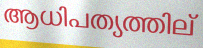
ആധിപത്യത്തില്